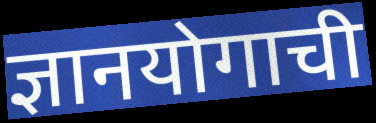
ज्ञानयोगाची